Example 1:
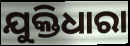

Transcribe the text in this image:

ଯୁକ୍ତିଧାରା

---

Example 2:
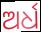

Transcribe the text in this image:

ଅର୍ଧ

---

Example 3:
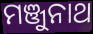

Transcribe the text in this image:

ମଞ୍ଜୁନାଥ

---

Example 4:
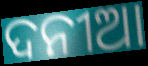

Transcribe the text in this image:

ଦନୀଆ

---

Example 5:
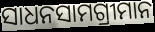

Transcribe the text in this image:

ସାଧନସାମଗ୍ରୀମାନ